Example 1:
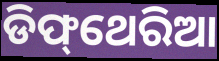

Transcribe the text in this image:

ଡିଫ୍‌ଥେରିଆ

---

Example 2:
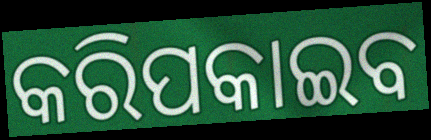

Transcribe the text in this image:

କରିପକାଇବ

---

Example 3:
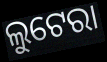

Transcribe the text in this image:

ଲୁଟେରା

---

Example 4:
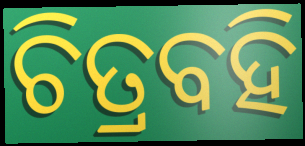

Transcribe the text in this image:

ଚିତ୍ରବହି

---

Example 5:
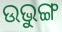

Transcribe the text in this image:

ଉଭୁଙ୍ଗ